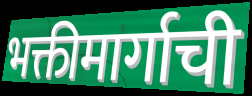
भक्तीमार्गाची